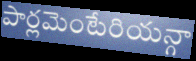
పార్లమెంటేరియన్గా